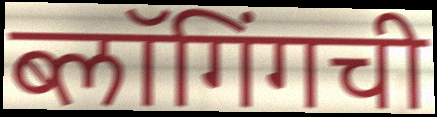
ब्लॉगिंगची